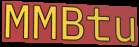
MMBtu